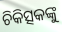
ଚିକିତ୍ସକଙ୍କୁ